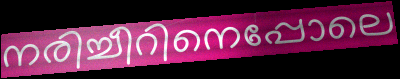
നരിച്ചീറിനെപ്പോലെ